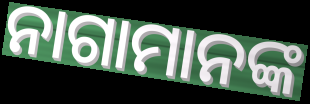
ନାଗାମାନଙ୍କ